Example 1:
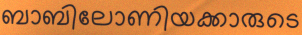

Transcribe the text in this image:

ബാബിലോണിയക്കാരുടെ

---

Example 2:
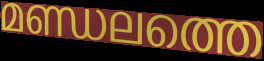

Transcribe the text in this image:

മണ്ഡലത്തെ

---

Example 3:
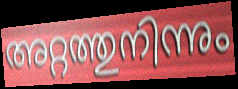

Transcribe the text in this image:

അറ്റത്തുനിന്നും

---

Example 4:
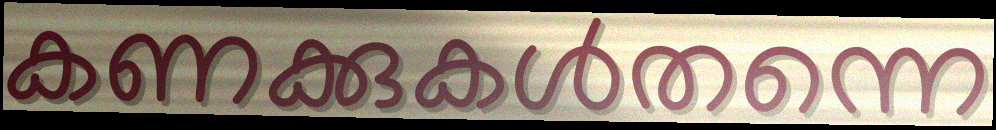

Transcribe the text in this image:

കണക്കുകൾതന്നെ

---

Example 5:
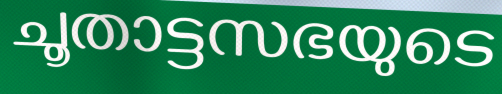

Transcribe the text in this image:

ചൂതാട്ടസഭയുടെ